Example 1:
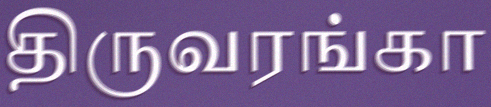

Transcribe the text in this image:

திருவரங்கா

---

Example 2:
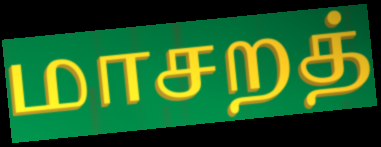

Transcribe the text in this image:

மாசறத்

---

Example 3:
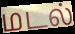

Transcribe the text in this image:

மடல்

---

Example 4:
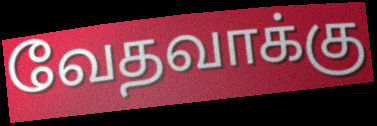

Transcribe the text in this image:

வேதவாக்கு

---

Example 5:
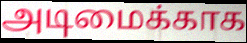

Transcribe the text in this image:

அடிமைக்காக